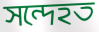
সন্দেহত